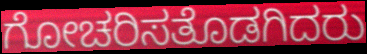
ಗೋಚರಿಸತೊಡಗಿದರು